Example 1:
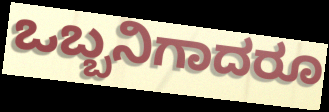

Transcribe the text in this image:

ಒಬ್ಬನಿಗಾದರೂ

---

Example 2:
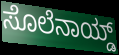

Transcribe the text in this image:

ಸೊಲೆನಾಯ್ಡ್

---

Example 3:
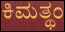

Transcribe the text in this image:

ಕಿಮತ್ಥಂ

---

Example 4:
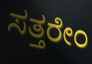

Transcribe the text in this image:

ಸತ್ತರೇಂ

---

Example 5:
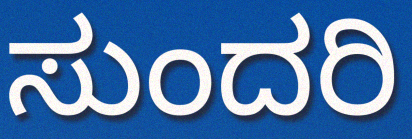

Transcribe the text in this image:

ಸುಂದರಿ